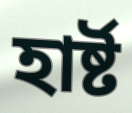
হাৰ্ষ্ট